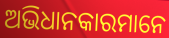
ଅଭିଧାନକାରମାନେ